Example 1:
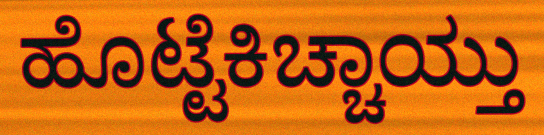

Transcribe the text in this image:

ಹೊಟ್ಟೆಕಿಚ್ಚಾಯ್ತು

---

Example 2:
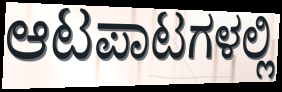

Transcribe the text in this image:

ಆಟಪಾಟಗಳಲ್ಲಿ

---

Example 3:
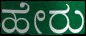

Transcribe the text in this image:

ಹೇರು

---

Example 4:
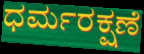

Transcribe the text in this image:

ಧರ್ಮರಕ್ಷಣೆ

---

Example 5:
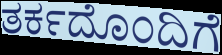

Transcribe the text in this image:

ತರ್ಕದೊಂದಿಗೆ